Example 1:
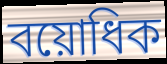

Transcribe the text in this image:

বয়োধিক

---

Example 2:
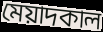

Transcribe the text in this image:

মেয়াদকাল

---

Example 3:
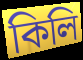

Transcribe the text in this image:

কিলি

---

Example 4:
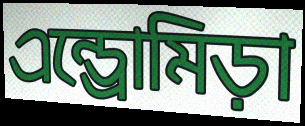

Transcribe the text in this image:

এন্ড্রোমিড়া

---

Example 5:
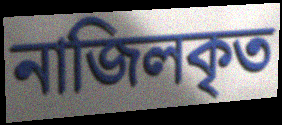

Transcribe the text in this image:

নাজিলকৃত